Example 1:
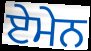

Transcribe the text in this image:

ਏਮੇਨ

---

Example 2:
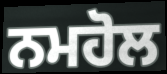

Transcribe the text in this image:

ਨਮਹੋਲ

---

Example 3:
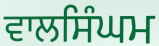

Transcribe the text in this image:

ਵਾਲਸਿੰਘਮ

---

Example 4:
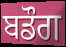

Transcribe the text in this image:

ਬਡੌਗ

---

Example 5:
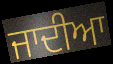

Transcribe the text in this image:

ਜਾਦੀਆ